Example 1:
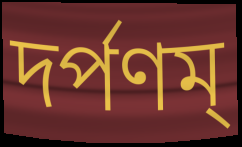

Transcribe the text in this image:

দর্পণম্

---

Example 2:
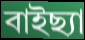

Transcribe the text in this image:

বাইছ্যা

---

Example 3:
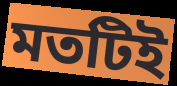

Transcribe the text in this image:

মতটিই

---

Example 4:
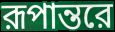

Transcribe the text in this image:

রূপান্তরে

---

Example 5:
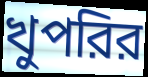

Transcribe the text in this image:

খুপরির